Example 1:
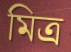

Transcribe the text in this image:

মিত্র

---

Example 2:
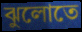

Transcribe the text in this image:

ঝুলোতে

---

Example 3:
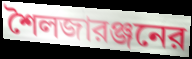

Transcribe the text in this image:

শৈলজারঞ্জনের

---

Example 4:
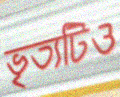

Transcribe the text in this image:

ভৃত্যটিও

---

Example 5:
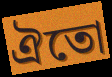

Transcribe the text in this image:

ঐতো